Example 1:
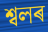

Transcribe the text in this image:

শ্বলৰ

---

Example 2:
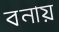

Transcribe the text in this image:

বনায়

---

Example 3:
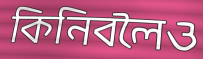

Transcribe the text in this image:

কিনিবলৈও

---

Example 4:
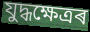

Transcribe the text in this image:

যুদ্ধক্ষেত্ৰৰ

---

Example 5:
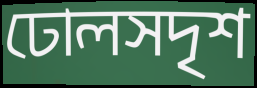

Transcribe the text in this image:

ঢোলসদৃশ